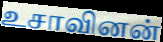
உசாவினன்